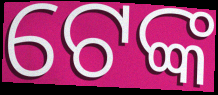
ଟେଙ୍କ